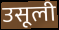
उसूली